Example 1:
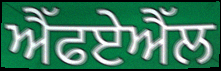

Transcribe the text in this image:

ਐੱਫਏਐੱਲ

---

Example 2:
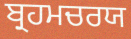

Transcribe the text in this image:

ਬ੍ਰਹਮਚਰਯ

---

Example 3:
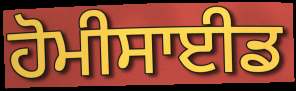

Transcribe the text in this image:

ਹੋਮੀਸਾਈਡ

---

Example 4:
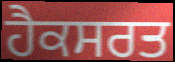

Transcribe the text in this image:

ਹੈਕਸਰਤ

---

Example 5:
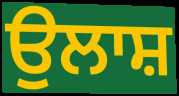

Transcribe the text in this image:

ਉਲਾਸ਼